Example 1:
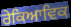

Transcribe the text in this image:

ਰੇਕਿਆਵਿਕ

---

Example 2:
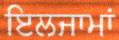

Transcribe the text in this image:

ਇਲਜਾਮਾਂ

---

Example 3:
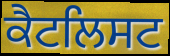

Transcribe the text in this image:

ਕੈਟਲਿਸਟ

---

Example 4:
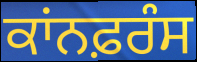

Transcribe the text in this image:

ਕਾਂਨਫ਼ਰੰਸ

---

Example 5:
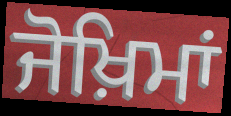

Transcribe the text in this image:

ਜੋਖ਼ਿਮਾਂ